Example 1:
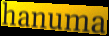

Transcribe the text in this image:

hanuma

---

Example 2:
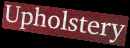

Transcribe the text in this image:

Upholstery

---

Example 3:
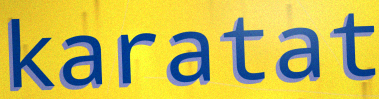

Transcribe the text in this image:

karatat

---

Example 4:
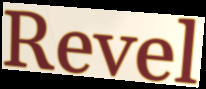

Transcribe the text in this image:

Revel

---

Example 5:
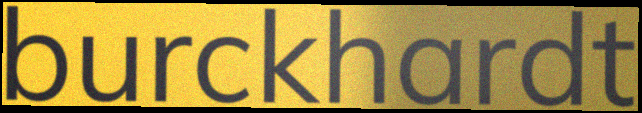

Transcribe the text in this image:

burckhardt